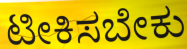
ಟೀಕಿಸಬೇಕು